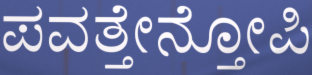
ಪವತ್ತೇನ್ತೋಪಿ